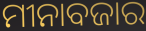
ମୀନାବଜାର